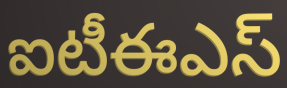
ఐటీఈఎస్